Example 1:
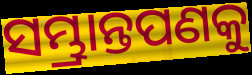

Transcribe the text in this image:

ସମ୍ଭ୍ରାନ୍ତପଣକୁ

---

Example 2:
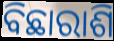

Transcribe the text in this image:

ବିଛାରାଶି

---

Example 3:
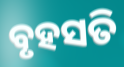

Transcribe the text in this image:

ବୃହସତି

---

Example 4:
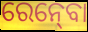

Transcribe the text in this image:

ରେନ୍‍ବୋ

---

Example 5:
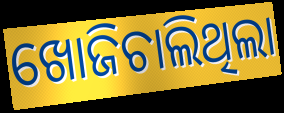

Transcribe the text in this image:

ଖୋଜିଚାଲିଥିଲା